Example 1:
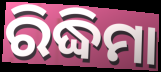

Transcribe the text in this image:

ରିଦ୍ଧିମା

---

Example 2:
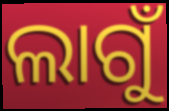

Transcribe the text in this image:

ଲାଗୁଁ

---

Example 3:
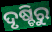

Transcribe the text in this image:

ଦୃଷ୍ଚିରୁ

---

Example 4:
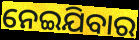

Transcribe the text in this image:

ନେଇଯିବାର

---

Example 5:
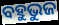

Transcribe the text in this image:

ବହୁଭୁଜ